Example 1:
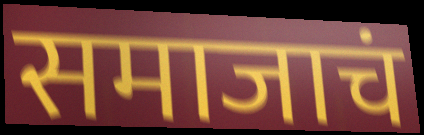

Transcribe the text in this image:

समाजाचं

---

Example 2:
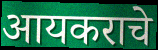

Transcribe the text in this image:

आयकराचे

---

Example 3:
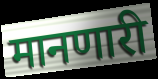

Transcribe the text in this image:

मानणारी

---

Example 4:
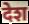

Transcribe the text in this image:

देश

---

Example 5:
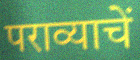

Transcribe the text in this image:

पराव्याचें